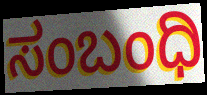
ಸಂಬಂಧಿ